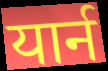
यार्न